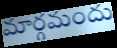
మార్గమందు